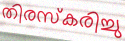
തിരസ്കരിച്ചു